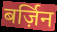
बर्ज़िन